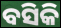
ବସିକି